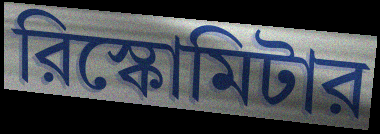
রিস্কোমিটার